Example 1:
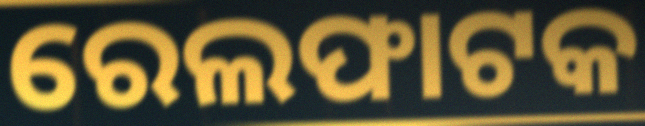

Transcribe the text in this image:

ରେଲଫାଟକ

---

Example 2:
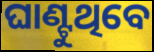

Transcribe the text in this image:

ଘାଣ୍ଟୁଥିବେ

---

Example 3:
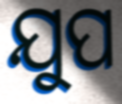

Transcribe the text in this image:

ଯୁପ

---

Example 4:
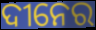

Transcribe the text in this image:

ଦୀନେର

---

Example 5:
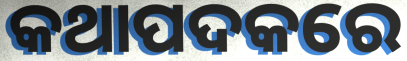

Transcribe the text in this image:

କଥାପଦକରେ